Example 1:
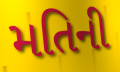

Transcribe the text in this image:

મતિની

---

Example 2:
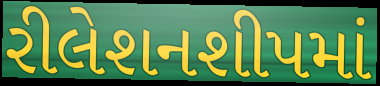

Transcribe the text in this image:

રીલેશનશીપમાં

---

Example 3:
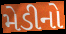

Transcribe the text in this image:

મેડીનો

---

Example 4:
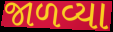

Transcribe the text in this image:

જાળવ્યા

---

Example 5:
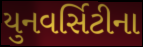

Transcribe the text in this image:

યુનવર્સિટીના